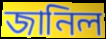
জানিল